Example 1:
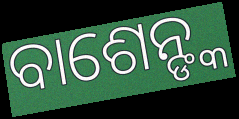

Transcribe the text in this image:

ବାଶେନ୍ଙ୍କ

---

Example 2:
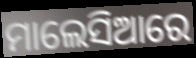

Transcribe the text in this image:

ମାଲେସିଆରେ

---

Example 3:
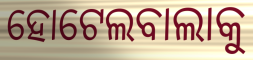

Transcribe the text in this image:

ହୋଟେଲବାଲାକୁ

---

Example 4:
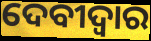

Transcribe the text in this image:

ଦେବୀଦ୍ବାର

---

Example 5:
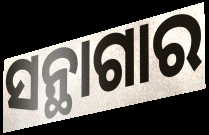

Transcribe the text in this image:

ସନ୍ଥାଗାର